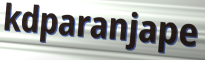
kdparanjape